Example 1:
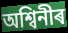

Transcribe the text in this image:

অশ্বিনীৰ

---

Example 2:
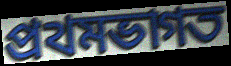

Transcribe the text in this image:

প্ৰথমভাগত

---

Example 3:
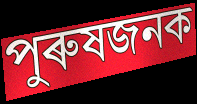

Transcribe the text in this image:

পুৰুষজনক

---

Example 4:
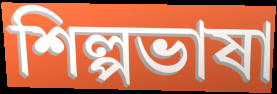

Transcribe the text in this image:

শিল্পভাষা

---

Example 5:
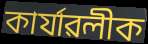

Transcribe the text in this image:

কাৰ্যাৱলীক